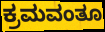
ಕ್ರಮವಂತೂ